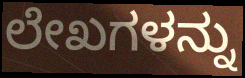
ಲೇಖಗಳನ್ನು